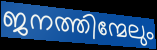
ജനത്തിന്മേലും